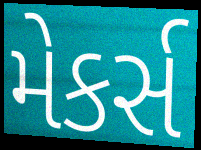
મેકર્સ